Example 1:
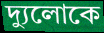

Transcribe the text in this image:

দ্যুলোকে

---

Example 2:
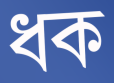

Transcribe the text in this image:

ধক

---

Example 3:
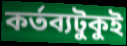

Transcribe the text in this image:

কর্তব্যটুকুই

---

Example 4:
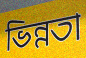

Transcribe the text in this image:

ভিন্নতা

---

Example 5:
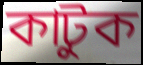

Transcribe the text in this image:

কাটুক